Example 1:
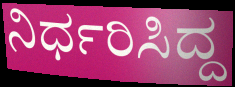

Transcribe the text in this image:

ನಿರ್ಧರಿಸಿದ್ದ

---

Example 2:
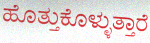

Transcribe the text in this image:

ಹೊತ್ತುಕೊಳ್ಳುತ್ತಾರೆ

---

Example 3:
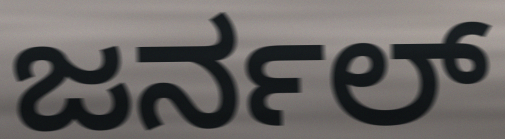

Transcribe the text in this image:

ಜರ್ನಲ್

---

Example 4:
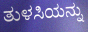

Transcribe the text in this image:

ತುಳಸಿಯನ್ನು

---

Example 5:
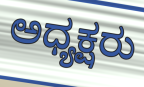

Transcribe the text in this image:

ಅಧ್ಯಕ್ಷರು